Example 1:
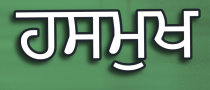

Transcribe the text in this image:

ਹਸਮੁਖ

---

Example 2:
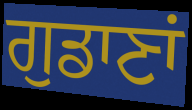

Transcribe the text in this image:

ਗੁਡਾਣਾਂ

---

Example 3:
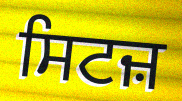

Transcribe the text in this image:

ਸਿਟਜ਼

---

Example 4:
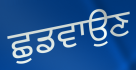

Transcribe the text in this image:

ਛੁਡਵਾਉਣ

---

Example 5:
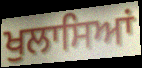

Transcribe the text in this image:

ਖੁਲਾਸਿਆਂ